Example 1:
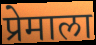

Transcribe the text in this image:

प्रेमाला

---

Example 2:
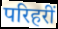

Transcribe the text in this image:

परिहरीं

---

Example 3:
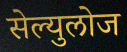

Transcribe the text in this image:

सेल्युलोज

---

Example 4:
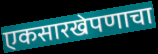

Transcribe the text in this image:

एकसारखेपणाचा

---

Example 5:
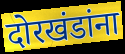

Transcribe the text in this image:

दोरखंडांना